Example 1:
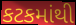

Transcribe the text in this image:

કટકમાંથી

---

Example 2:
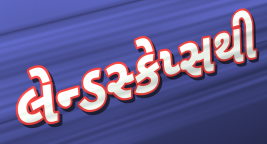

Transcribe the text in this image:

લેન્ડસ્કેપ્સથી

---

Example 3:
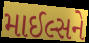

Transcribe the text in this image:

માઈલ્સને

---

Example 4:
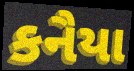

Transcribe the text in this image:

કનૈયા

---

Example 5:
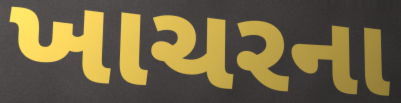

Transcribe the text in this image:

ખાચરના